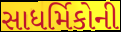
સાધર્મિકોની